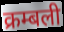
क्रम्बली